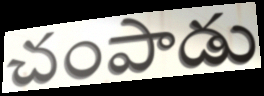
చంపాడు